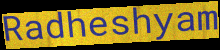
Radheshyam